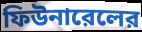
ফিউনারেলের